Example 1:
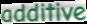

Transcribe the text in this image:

additive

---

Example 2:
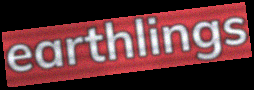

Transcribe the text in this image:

earthlings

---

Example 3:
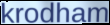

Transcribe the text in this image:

krodham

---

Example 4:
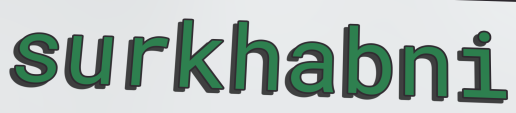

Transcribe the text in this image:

surkhabni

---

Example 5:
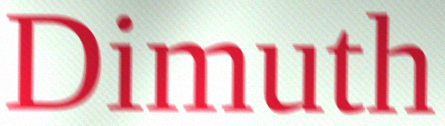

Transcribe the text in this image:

Dimuth